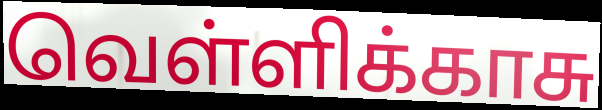
வெள்ளிக்காசு